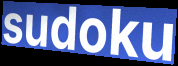
sudoku